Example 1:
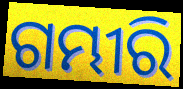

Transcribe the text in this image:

ଗମ୍ଭୀରି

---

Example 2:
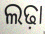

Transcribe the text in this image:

ଲଢ଼ା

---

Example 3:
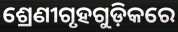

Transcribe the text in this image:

ଶ୍ରେଣୀଗୃହଗୁଡ଼ିକରେ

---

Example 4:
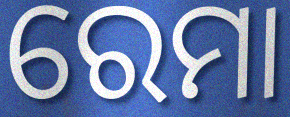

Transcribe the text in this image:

ରେମା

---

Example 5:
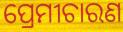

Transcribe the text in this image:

ପ୍ରେମୀଚାରଣ